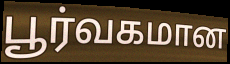
பூர்வகமான